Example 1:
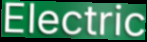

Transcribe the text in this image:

Electric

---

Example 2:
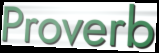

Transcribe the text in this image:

Proverb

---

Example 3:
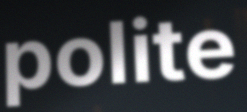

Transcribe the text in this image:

polite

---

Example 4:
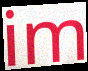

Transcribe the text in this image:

im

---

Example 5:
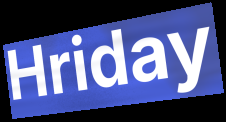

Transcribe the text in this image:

Hriday